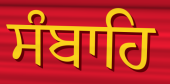
ਸੰਬਾਹਿ